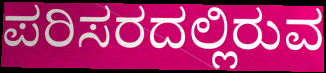
ಪರಿಸರದಲ್ಲಿರುವ